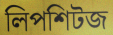
লিপশিটজ